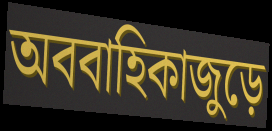
অববাহিকাজুড়ে